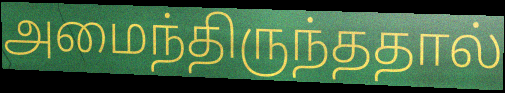
அமைந்திருந்ததால்